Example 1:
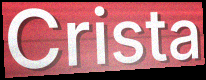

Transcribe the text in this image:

Crista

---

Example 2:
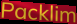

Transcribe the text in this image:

Packlim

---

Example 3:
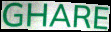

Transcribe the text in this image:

GHARE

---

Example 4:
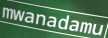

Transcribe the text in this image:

mwanadamu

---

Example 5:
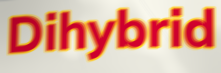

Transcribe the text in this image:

Dihybrid